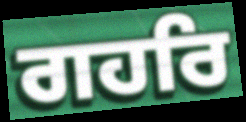
ਗਹਰਿ